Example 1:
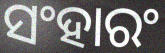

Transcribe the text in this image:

ସଂହାରଂ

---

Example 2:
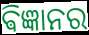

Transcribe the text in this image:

ଵିଜ୍ଞାନର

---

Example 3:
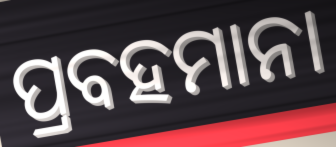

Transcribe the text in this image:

ପ୍ରବହମାନା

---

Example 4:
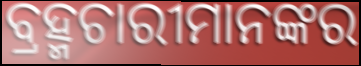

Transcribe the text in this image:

ବ୍ରହ୍ମଚାରୀମାନଙ୍କର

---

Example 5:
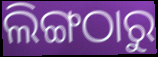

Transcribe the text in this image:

ଲିଙ୍ଗଠାରୁ